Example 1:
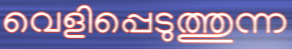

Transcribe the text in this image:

വെളിപ്പെടുത്തുന്ന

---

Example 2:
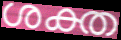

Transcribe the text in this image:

ശക്ത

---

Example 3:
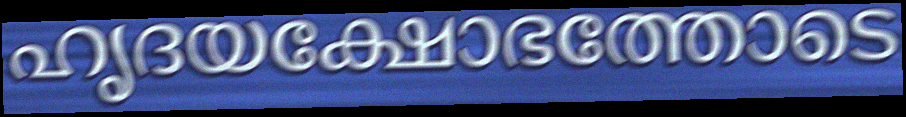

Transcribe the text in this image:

ഹൃദയക്ഷോഭത്തോടെ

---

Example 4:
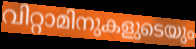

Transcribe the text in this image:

വിറ്റാമിനുകളുടെയും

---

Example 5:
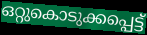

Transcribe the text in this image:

ഒറ്റുകൊടുക്കപ്പെട്ട്